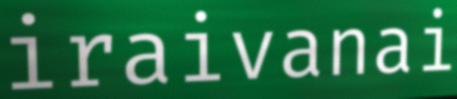
iraivanai